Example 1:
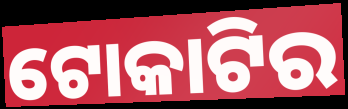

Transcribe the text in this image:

ଟୋକାଟିର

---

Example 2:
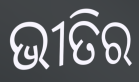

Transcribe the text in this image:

ଭୀତିର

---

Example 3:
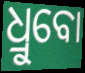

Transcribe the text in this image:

ଧ୍ରୁବୋ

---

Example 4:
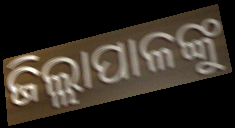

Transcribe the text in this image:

ଜିଲ୍ଲାପାଳଙ୍କୁ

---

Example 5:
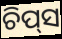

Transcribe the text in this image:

ଚିପ୍‌ସ